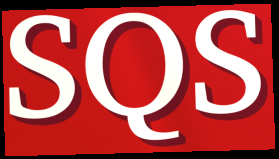
SQS